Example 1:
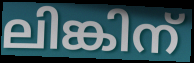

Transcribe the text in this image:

ലിങ്കിന്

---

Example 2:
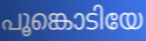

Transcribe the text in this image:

പൂങ്കൊടിയേ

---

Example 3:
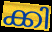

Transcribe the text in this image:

ക്കി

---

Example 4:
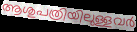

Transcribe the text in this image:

ആശുപത്രിയിലുള്ളവർ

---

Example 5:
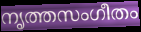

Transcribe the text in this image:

നൃത്തസംഗീതം